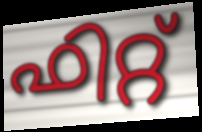
ഫിറ്റ്